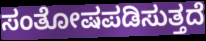
ಸಂತೋಷಪಡಿಸುತ್ತದೆ